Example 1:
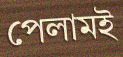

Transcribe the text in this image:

পেলামই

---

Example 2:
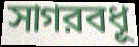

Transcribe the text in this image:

সাগরবধূ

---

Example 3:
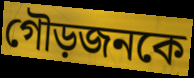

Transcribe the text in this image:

গৌড়জনকে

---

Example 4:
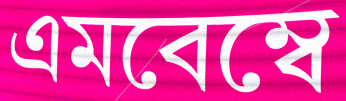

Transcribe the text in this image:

এমবেম্বে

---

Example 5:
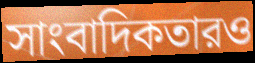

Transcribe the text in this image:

সাংবাদিকতারও